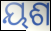
ୟଶ